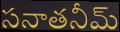
సనాతనీమ్